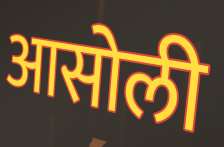
आसोली